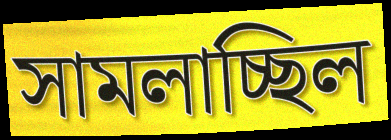
সামলাচ্ছিল